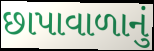
છાપાવાળાનું